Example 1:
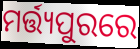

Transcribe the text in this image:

ମର୍ତ୍ତ୍ୟପୁରରେ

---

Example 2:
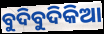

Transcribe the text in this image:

ବୁଦିବୁଦିକିଆ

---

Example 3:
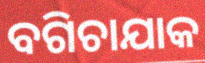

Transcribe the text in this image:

ବଗିଚାଯାକ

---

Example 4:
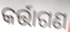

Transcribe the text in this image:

କର୍ତ୍ତାଗଣ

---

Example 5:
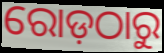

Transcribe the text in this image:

ରୋଡ଼ଠାରୁ